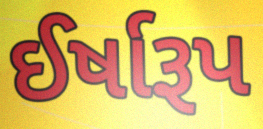
ઈર્ષારૂપ